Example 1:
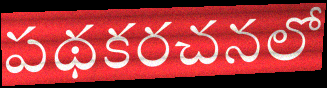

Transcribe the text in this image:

పథకరచనలో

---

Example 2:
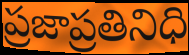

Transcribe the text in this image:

ప్రజాప్రతినిధి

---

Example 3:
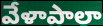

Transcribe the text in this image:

వేళాపాలా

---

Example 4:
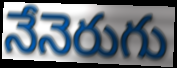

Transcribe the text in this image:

నేనెరుగు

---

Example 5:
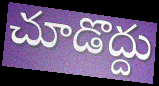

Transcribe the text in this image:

చూడొద్దు